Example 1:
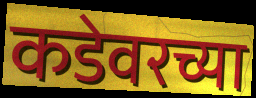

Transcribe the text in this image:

कडेवरच्या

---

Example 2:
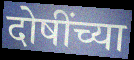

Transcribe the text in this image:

दोषींच्या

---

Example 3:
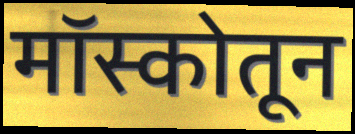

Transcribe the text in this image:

मॉस्कोतून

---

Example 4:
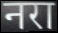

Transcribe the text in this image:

नरा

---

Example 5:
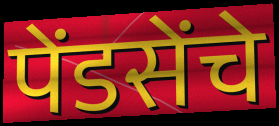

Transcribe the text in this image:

पेंडसेंचे